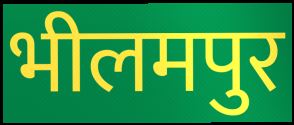
भीलमपुर